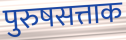
पुरुषसत्ताक